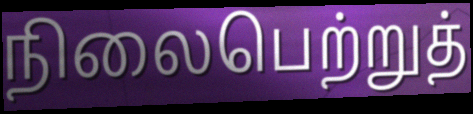
நிலைபெற்றுத்